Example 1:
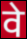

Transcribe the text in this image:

वे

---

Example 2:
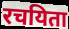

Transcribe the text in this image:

रचयिता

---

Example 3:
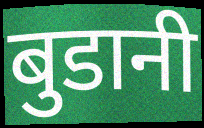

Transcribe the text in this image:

बुडानी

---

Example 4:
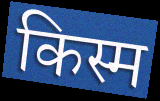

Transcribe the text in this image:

किस्म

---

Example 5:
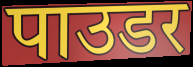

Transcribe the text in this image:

पाउडर